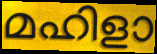
മഹിളാ